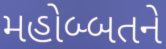
મહોબ્બતને